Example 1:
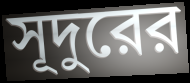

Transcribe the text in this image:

সূদুরের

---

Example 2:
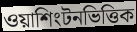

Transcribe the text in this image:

ওয়াশিংটনভিত্তিক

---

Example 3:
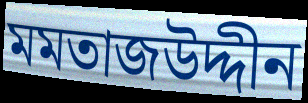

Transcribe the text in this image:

মমতাজউদ্দীন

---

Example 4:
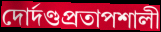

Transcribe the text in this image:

দোর্দণ্ডপ্রতাপশালী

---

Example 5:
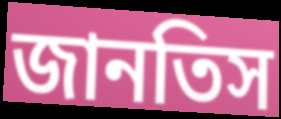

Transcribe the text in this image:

জানতিস